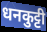
धनकुट्टी